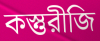
কস্তুরীজি